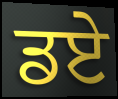
ਡਏ